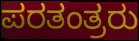
ಪರತಂತ್ರರು